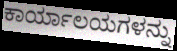
ಕಾರ್ಯಾಲಯಗಳನ್ನು